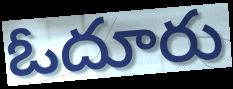
ఓదూరు